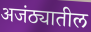
अजंठ्यातील